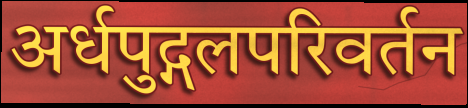
अर्धपुद्गलपरिवर्तन